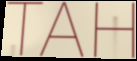
TAH